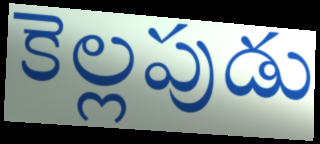
కెల్లపుడు